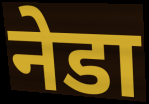
नेडा